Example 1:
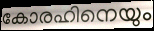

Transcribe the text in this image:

കോരഹിനെയും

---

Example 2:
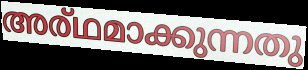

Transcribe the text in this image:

അര്ഥമാക്കുന്നതു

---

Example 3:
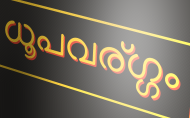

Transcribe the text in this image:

ധൂപവര്ഗ്ഗം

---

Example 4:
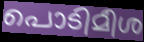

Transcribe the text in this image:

പൊടിമീശ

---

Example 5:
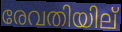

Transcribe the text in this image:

രേവതിയില്